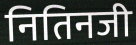
नितिनजी